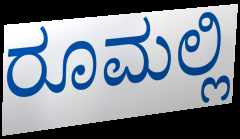
ರೂಮಲ್ಲಿ